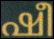
ഷീ